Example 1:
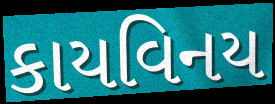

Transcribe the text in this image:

કાયવિનય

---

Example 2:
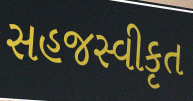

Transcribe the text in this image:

સહજસ્વીકૃત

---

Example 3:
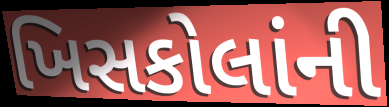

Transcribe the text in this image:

ખિસકોલાંની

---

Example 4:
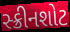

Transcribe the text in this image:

સ્ક્રીનશોટ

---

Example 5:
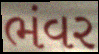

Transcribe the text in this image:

ભંવર